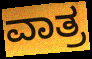
ವಾತ್ರ